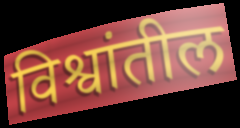
विश्वांतील